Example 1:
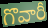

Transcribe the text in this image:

గొవారీ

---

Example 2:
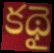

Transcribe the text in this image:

కథై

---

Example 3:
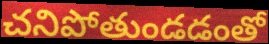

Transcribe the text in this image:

చనిపోతుండడంతో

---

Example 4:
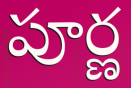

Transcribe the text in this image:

పూర్ణ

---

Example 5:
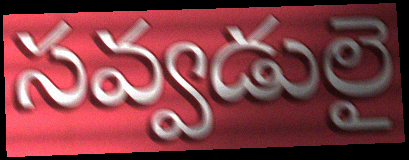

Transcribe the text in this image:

సవ్వడులై